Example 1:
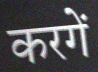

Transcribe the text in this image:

करगें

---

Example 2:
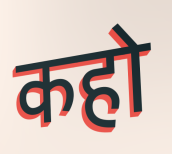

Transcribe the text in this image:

कहो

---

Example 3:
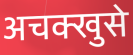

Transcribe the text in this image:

अचक्खुसे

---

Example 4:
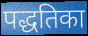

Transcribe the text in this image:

पद्धतिका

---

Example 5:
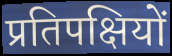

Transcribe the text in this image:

प्रतिपक्षियों